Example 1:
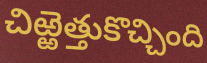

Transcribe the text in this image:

చిఱ్ఱెత్తుకొచ్చింది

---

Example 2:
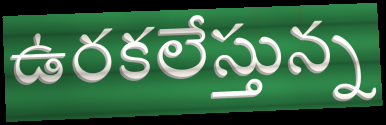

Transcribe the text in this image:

ఉరకలేస్తున్న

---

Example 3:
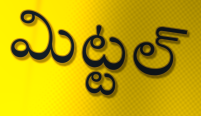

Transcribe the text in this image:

మిట్టల్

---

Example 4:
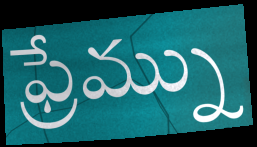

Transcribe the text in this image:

ఫ్రేమ్ను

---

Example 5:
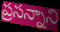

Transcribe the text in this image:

ప్రసన్నాని